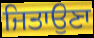
ਜਿਤਾਉਣਾ